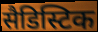
सैडिस्टिक